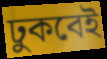
ঢুকবেই